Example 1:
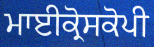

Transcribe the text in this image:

ਮਾਈਕ੍ਰੋਸਕੋਪੀ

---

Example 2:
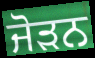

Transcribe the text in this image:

ਜੋੜਨ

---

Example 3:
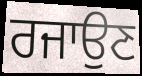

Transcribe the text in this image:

ਰਜਾਉਣ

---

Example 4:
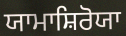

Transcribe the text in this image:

ਯਾਮਾਸ਼ਿਰੋਯਾ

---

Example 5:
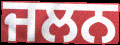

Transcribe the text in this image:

ਜਲਨ